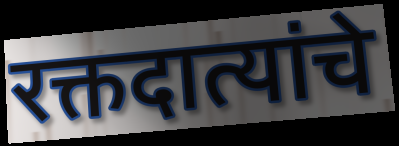
रक्तदात्यांचे